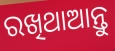
ରଖିଥାଆନ୍ତୁ